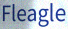
Fleagle